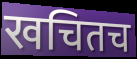
खचितच